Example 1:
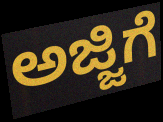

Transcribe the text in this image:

ಅಜ್ಜಿಗೆ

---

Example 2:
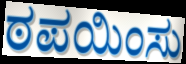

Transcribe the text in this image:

ಠಪಯಿಂಸು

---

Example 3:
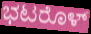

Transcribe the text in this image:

ಭಟರೊಳ್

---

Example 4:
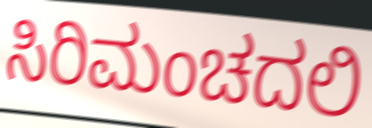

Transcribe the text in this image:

ಸಿರಿಮಂಚದಲಿ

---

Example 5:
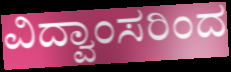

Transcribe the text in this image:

ವಿದ್ವಾಂಸರಿಂದ